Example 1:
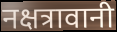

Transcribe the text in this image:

नक्षत्रावानी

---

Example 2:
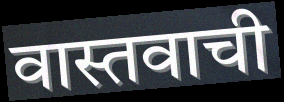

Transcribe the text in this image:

वास्तवाची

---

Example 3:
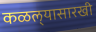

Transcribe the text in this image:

कळल्यासारखी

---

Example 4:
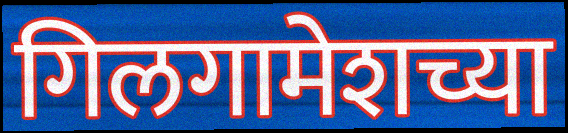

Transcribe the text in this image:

गिलगामेशच्या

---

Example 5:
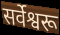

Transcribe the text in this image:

सर्वेश्वरू